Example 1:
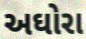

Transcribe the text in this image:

અઘોરા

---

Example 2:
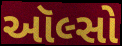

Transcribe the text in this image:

ઑલ્સો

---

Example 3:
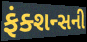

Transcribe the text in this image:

ફંક્શન્સની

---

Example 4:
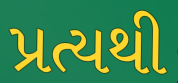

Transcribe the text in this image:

પ્રત્યથી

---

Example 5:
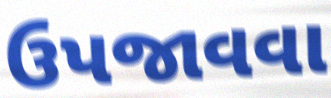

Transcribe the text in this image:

ઉપજાવવા